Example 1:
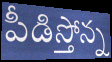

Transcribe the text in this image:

పీడిస్తోన్న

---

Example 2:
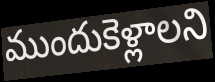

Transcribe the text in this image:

ముందుకెళ్లాలని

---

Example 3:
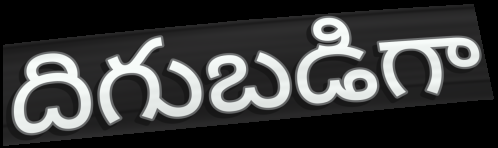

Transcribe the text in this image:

దిగుబడిగా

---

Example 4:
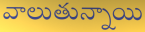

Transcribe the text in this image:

వాలుతున్నాయి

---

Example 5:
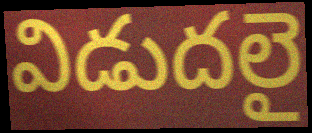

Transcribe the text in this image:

విడుదలై